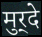
मुर्दे